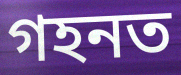
গহনত